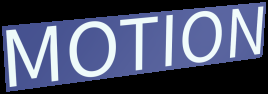
MOTION